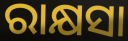
ରାକ୍ଷସା